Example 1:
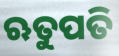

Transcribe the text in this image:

ଋତୁପତି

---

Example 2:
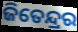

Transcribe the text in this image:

ଜିତେନ୍ଦ୍ରର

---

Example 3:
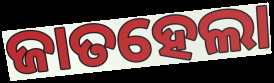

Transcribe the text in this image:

ଜାତହେଲା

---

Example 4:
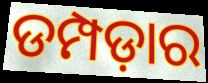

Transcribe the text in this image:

ଡମ୍ପଡ଼ାର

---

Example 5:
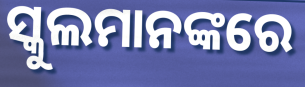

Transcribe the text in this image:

ସ୍କୁଲମାନଙ୍କରେ